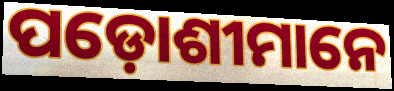
ପଡ଼ୋଶୀମାନେ